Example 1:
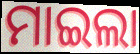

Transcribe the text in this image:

ମାଇଲା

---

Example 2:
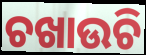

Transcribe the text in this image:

ଚଖାଉଚି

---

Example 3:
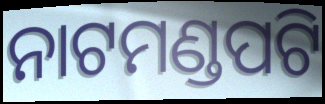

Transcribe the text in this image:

ନାଟମଣ୍ଡପଟି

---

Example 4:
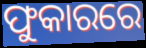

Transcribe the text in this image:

ଫୁକାରରେ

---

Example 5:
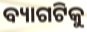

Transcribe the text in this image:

ବ୍ୟାଗଟିକୁ